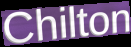
Chilton